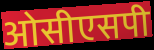
ओसीएसपी